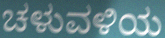
ಚಳುವಳಿಯ